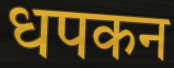
धपकन